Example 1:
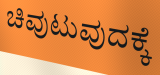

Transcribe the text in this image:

ಚಿವುಟುವುದಕ್ಕೆ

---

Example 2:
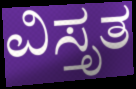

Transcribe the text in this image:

ವಿಸ್ತೃತ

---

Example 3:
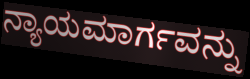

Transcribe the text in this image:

ನ್ಯಾಯಮಾರ್ಗವನ್ನು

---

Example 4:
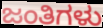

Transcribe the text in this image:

ಜಂತಿಗಳು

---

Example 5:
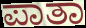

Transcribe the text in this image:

ಪಾತಾ